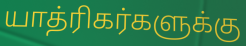
யாத்ரிகர்களுக்கு